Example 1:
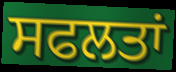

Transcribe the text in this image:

ਸਫਲਤਾਂ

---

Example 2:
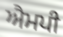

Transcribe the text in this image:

ਐਮਪੀ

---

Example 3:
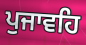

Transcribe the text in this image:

ਪੁਜਾਵਹਿ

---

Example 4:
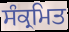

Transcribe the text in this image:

ਸੰਕ੍ਰਮਿਤ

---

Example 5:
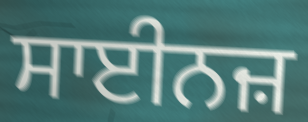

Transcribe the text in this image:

ਸਾਈਨਜ਼